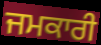
ਜਮਕਾਰੀ